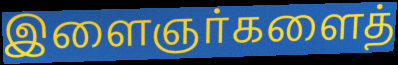
இளைஞர்களைத்